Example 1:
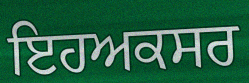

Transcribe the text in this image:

ਇਹਅਕਸਰ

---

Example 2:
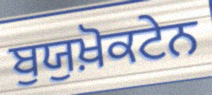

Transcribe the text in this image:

ਬੁਯੁਖ਼ੋਕਟੇਨ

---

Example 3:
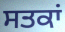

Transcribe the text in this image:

ਸਤਕਾਂ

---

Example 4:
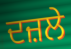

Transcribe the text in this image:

ਦਜ਼ਲੇ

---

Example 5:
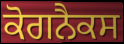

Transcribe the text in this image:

ਕੋਗਨੈਕਸ